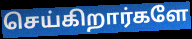
செய்கிறார்களே